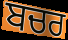
ਬਚਰ